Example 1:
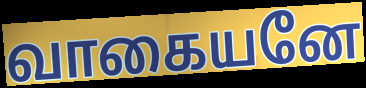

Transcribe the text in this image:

வாகையனே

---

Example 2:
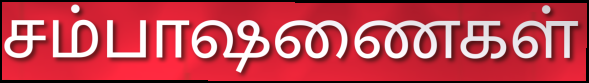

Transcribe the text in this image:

சம்பாஷணைகள்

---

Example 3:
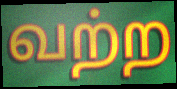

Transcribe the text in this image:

வற்ற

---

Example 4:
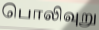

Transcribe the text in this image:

பொலிவுறு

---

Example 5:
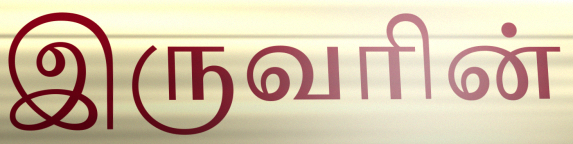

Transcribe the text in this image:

இருவரின்